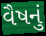
વૈષનું